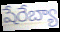
షేరేబ్యా